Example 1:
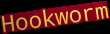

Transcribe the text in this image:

Hookworm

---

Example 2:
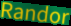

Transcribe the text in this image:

Randor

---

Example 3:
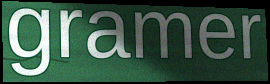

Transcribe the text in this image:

gramer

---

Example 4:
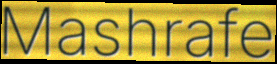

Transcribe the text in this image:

Mashrafe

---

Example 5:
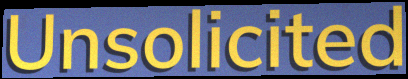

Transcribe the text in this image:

Unsolicited